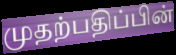
முதற்பதிப்பின்